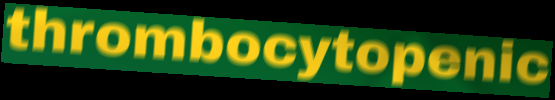
thrombocytopenic